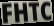
FHTC